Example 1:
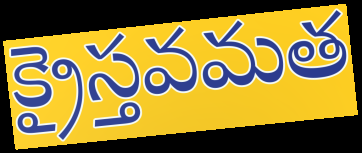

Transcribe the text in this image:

క్రైస్తవమత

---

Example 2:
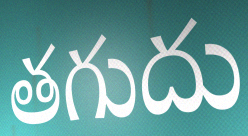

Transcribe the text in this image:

తగుదు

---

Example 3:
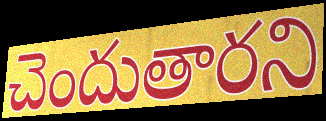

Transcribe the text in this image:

చెందుతారని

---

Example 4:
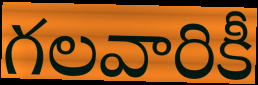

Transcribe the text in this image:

గలవారికీ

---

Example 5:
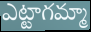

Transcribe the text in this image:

ఎట్టాగమ్మా